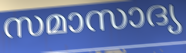
സമാസാദ്യ